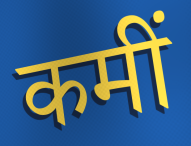
कमीं